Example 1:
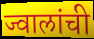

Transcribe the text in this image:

ज्वालांची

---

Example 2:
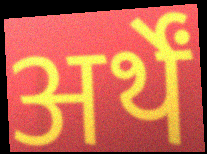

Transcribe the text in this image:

अर्थें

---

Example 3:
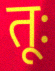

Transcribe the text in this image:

तूः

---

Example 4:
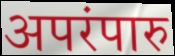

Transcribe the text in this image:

अपरंपारु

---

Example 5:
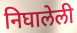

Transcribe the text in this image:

निघालेली